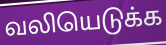
வலியெடுக்க